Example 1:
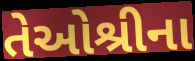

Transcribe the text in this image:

તેઓશ્રીના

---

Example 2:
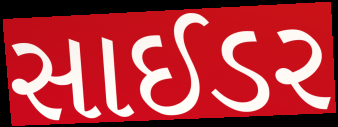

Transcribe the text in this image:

સાઈડર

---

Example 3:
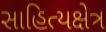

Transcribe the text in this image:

સાહિત્યક્ષેત્ર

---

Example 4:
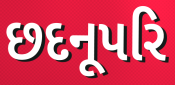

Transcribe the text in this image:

છદનૂપરિ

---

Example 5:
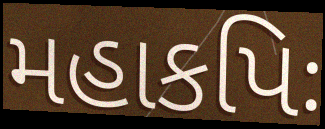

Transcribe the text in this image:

મહાકપિઃ